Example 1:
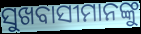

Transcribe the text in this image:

ସୁଖବାସୀମାନଙ୍କୁ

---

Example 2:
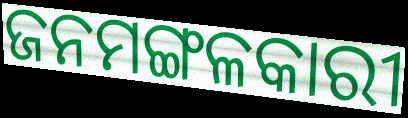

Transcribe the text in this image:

ଜନମଙ୍ଗଳକାରୀ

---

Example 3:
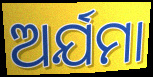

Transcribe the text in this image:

ଅର୍ଯମା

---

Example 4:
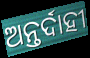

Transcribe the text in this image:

ଅନ୍ତର୍ଦାହୀ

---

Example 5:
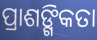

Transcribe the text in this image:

ପ୍ରାଶଙ୍ଗିକତା